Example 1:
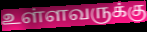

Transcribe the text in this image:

உள்ளவருக்கு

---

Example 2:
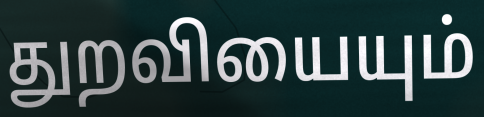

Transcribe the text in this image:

துறவியையும்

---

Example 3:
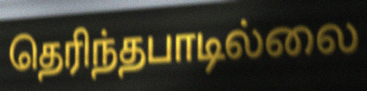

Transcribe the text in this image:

தெரிந்தபாடில்லை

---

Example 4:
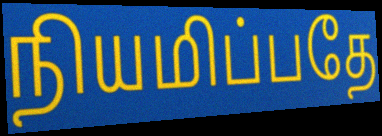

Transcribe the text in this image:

நியமிப்பதே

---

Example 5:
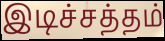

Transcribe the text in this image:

இடிச்சத்தம்